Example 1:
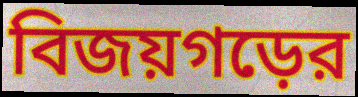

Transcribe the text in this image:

বিজয়গড়ের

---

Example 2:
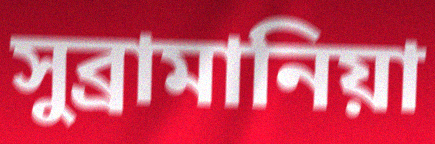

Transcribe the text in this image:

সুব্রামানিয়া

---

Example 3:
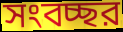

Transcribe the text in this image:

সংবচ্ছর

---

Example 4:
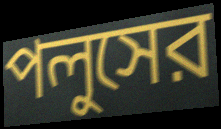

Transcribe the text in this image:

পলুসের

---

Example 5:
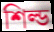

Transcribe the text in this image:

শিল্ড